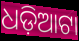
ଧଡ଼ିଆଟା